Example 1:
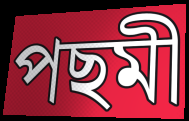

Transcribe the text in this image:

পছমী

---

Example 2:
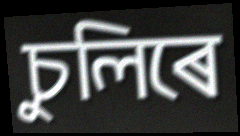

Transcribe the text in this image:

চুলিৰে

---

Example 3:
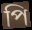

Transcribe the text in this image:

পি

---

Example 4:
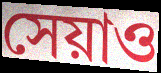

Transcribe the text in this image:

সেয়াও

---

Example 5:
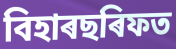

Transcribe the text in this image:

বিহাৰছৰিফত